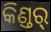
କିଣ୍ଡର୍